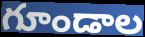
గూండాల